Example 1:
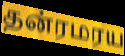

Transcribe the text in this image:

தன்ரமரய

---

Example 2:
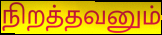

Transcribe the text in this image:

நிறத்தவனும்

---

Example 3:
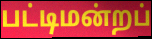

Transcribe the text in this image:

பட்டிமன்றப்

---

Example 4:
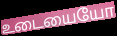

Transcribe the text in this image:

உடையையோ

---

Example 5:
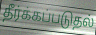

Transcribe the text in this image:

தீர்க்கப்படுதல்